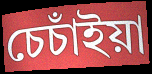
চেচাঁইয়া